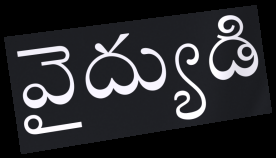
వైద్యుడి